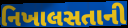
નિખાલસતાની